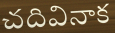
చదివినాక